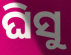
ଘିସୁ